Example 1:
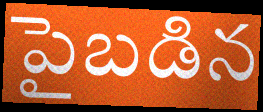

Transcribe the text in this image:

పైబడిన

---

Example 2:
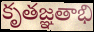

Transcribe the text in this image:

కృతజ్ఞతాభి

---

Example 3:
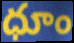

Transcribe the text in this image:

ధూం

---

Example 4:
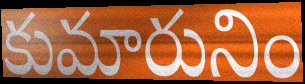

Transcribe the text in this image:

కుమారునిం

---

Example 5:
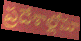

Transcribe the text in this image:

ప్రదేశాల్లోనూ